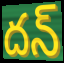
దన్